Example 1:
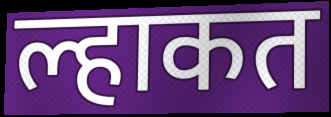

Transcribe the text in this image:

ल्हाकत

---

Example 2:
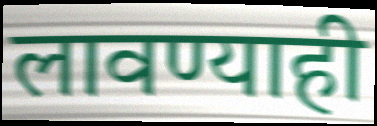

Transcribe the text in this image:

लावण्याही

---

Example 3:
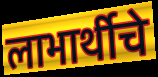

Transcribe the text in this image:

लाभार्थीचे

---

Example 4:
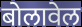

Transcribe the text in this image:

बोलावेल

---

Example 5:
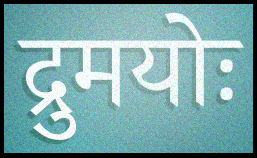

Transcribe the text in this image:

द्रुमयोः